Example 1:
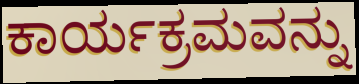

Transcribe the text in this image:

ಕಾರ್ಯಕ್ರಮವನ್ನು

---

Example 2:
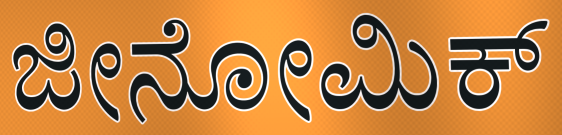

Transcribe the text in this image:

ಜೀನೋಮಿಕ್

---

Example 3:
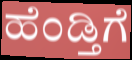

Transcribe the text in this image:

ಹೆಂಡ್ತಿಗೆ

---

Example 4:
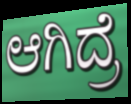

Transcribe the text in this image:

ಆಗಿದ್ರೆ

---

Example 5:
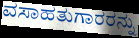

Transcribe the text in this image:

ವಸಾಹತುಗಾರರನ್ನು